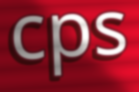
cps